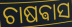
ଚାଷଵାସ